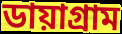
ডায়াগ্রাম